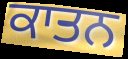
ਕਾਤਨ